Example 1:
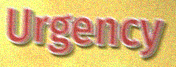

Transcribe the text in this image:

Urgency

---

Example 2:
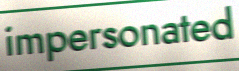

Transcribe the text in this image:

impersonated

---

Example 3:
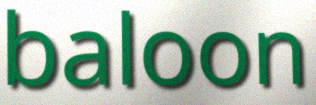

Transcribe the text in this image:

baloon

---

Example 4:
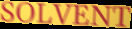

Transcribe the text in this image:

SOLVENT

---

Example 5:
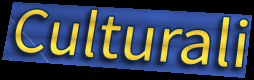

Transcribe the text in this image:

Culturali